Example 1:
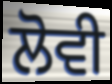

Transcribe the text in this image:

ਲੋਵੀ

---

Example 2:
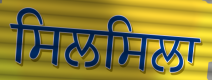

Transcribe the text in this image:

ਸਿਲਸਿਲਾ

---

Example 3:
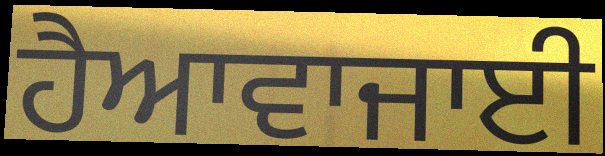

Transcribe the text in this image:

ਹੈਆਵਾਜਾਈ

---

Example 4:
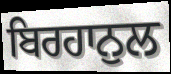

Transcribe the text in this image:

ਬਿਰਹਾਨੁਲ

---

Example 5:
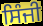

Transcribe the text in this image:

ਸਿੰਜੀ